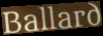
Ballard